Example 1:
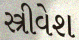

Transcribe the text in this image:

સ્ત્રીવેશ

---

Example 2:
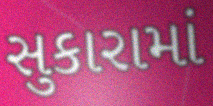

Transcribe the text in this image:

સુકારામાં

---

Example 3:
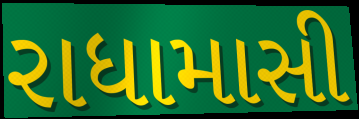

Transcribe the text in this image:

રાધામાસી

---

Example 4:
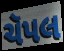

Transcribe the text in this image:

ચૅપલ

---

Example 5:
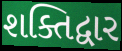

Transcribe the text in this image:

શક્તિદ્વાર